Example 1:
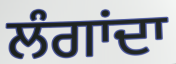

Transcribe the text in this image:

ਲੰਗਾਂਦਾ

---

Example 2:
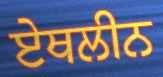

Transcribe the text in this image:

ਏਥਲੀਨ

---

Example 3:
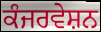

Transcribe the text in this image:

ਕੰਜਰਵੇਸ਼ਨ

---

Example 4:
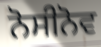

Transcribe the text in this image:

ਨੋਸੀਨੋਵ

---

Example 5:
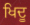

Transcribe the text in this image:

ਖਿਦੂ